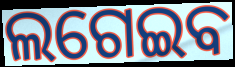
ଲଗେଇବ